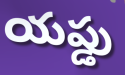
యప్డు